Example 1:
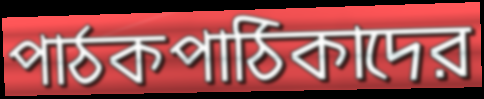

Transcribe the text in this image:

পাঠকপাঠিকাদের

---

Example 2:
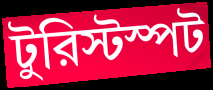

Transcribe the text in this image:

টুরিস্টস্পট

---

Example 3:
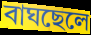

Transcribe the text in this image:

বাঘছেলে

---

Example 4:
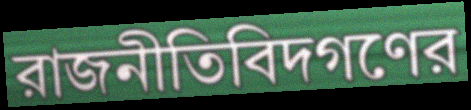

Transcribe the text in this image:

রাজনীতিবিদগণের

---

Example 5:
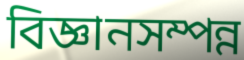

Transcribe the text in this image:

বিজ্ঞানসম্পন্ন